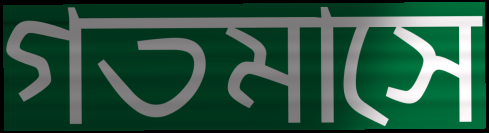
গতমাসে